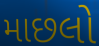
માછલો